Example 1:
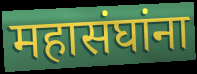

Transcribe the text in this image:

महासंघांना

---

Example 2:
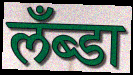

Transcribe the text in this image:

लँब्डा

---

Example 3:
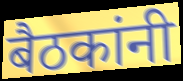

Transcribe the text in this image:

बैठकांनी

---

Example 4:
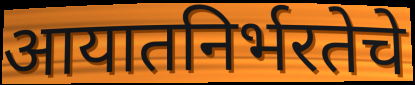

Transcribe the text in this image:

आयातनिर्भरतेचे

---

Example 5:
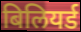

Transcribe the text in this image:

बिलियर्ड